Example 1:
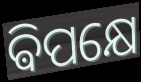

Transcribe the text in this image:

ଵିପକ୍ଷେ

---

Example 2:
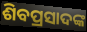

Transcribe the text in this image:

ଶିବପ୍ରସାଦଙ୍କ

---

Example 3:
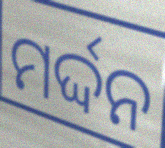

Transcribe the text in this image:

ମର୍ଦ୍ଦନ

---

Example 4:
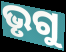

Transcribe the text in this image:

ଭୃଗୁ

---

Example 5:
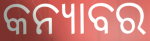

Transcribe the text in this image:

କନ୍ୟାବର